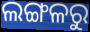
ଲଙ୍ଗଳରୁ